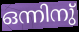
ഒന്നിനു്